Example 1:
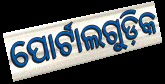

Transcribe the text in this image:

ପୋର୍ଟାଲଗୁଡ଼ିକ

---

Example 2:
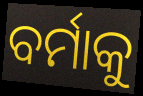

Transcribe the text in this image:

ବର୍ମାକୁ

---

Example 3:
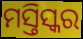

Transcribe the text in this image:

ମସ୍ତିସ୍କର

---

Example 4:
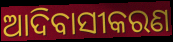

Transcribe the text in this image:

ଆଦିବାସୀକରଣ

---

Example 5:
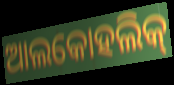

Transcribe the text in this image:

ଆଲକୋହଲିକ୍